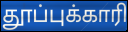
தூப்புக்காரி